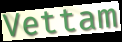
Vettam